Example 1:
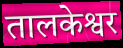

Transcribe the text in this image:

तालकेश्वर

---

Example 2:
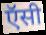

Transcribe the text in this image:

ऍसी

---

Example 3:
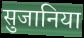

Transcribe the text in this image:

सुजानिया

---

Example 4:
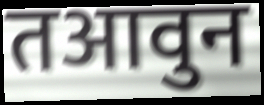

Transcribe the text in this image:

तआवुन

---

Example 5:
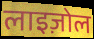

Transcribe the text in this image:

लाइज़ोल